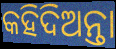
କହିଦିଅନ୍ତା